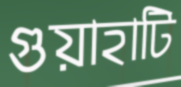
গুয়াহাটি